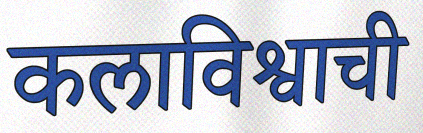
कलाविश्वाची